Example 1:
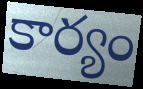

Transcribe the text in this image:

కార్యం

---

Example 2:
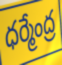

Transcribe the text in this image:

ధర్మేంద్ర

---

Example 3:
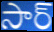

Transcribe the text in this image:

సార్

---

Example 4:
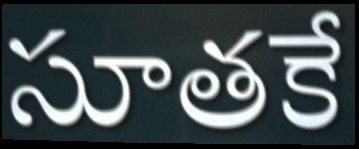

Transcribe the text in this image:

సూతకే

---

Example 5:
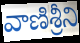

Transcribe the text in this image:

వాణిశ్రీని